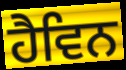
ਹੈਵਿਨ